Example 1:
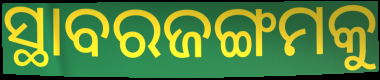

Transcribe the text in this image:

ସ୍ଥାବରଜଙ୍ଗମକୁ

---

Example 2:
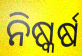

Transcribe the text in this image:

ନିଷ୍କର୍ଷ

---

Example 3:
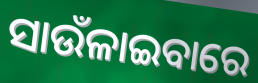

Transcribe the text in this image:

ସାଉଁଳାଇବାରେ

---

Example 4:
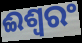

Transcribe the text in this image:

ଈଶ୍ୱରଂ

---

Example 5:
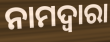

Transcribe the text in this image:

ନାମଦ୍ଵାରା